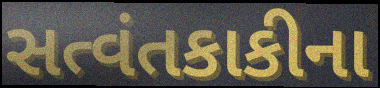
સત્વંતકાકીના